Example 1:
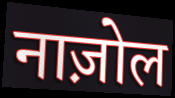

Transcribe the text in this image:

नाज़ोल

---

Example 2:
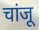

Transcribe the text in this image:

चांजू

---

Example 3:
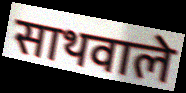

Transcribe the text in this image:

साथवाले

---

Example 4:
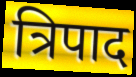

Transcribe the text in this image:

त्रिपाद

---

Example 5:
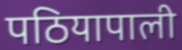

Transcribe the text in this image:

पठियापाली